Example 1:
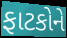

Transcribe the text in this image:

ફાટકોને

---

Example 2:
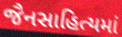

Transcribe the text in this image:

જૈનસાહિત્યમાં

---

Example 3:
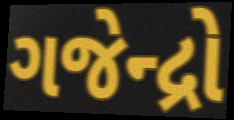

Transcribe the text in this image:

ગજેન્દ્રો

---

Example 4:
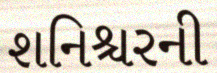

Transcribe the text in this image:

શનિશ્ચરની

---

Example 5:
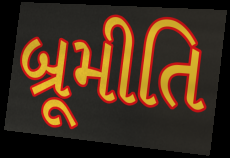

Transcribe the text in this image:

બ્રૂમીતિ